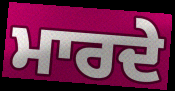
ਮਾਰਦੇ